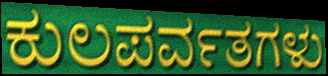
ಕುಲಪರ್ವತಗಳು